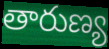
తారుణ్య